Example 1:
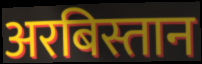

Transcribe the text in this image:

अरबिस्तान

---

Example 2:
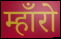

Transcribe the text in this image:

म्हाँरो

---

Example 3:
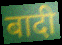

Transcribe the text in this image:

बादी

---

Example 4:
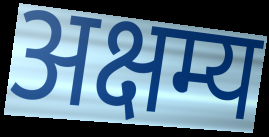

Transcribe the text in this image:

अक्षम्य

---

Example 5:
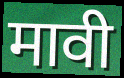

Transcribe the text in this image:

मावी